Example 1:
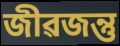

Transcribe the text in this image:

জীৱজন্তু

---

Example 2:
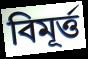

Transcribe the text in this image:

বিমূৰ্ত্ত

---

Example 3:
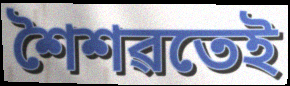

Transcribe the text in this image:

শৈশৱতেই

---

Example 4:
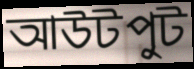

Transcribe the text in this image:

আউটপুট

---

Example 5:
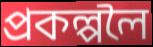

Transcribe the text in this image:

প্ৰকল্পলৈ